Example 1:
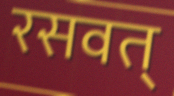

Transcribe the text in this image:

रसवत्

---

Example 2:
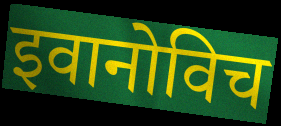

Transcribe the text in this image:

इवानोविच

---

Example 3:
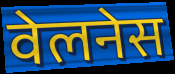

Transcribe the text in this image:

वेलनेस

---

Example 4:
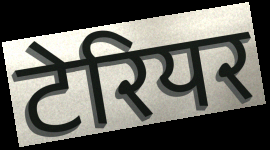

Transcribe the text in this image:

टेरियर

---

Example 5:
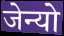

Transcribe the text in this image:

जेन्यो